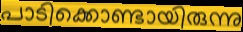
പാടിക്കൊണ്ടായിരുന്നു